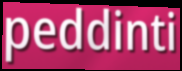
peddinti